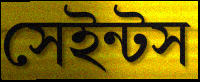
সেইন্টস